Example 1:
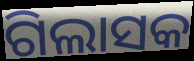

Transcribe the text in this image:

ଗିଲାସକ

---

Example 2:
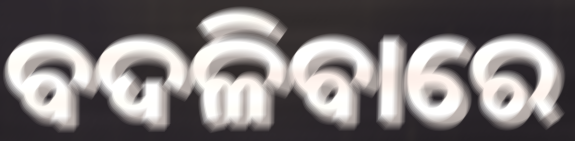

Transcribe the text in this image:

ବଦଳିବାରେ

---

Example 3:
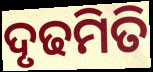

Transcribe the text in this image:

ଦୃଢମିତି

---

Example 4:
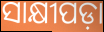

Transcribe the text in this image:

ସାକ୍ଷୀପଡ଼ା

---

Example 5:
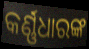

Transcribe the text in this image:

କର୍ଣ୍ଣଧାରଙ୍କ